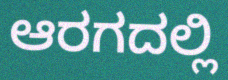
ಆರಗದಲ್ಲಿ